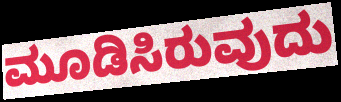
ಮೂಡಿಸಿರುವುದು